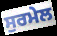
ਸੁਰਮੇਲ